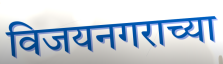
विजयनगराच्या